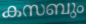
കസബും